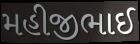
મહીજીભાઈ